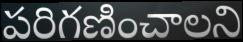
పరిగణించాలని